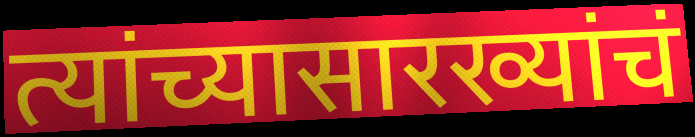
त्यांच्यासारख्यांचं